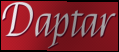
Daptar